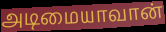
அடிமையாவான்